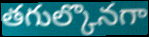
తగుల్కొనగా